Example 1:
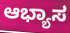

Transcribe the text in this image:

ಆಭ್ಯಾಸ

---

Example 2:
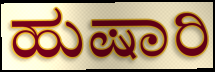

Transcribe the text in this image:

ಹುಷಾರಿ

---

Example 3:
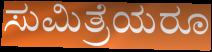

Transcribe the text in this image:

ಸುಮಿತ್ರೆಯರೂ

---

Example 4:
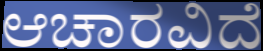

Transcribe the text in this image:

ಆಚಾರವಿದೆ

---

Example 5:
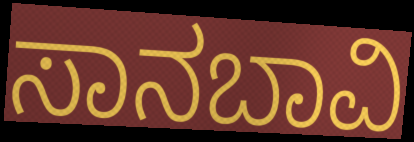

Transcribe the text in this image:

ಸಾನಬಾವಿ